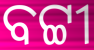
ବଟ୍ଟୀ